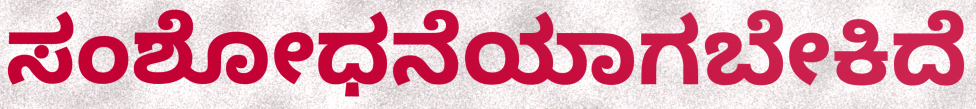
ಸಂಶೋಧನೆಯಾಗಬೇಕಿದೆ